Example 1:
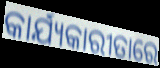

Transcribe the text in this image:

କାର୍ଯ୍ୟକାରୀତାରେ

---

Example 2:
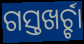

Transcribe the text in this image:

ଗସ୍ତଖର୍ଚ୍ଚା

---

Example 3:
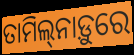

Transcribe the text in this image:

ତାମିଲ୍‌ନାଡ଼ୁରେ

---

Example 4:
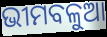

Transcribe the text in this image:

ଭୀମବଳୁଆ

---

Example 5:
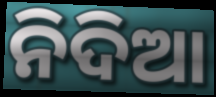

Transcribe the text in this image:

ନିଦିଆ